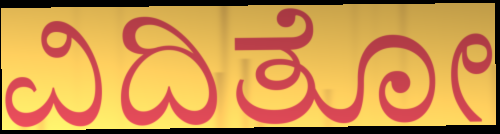
ವಿದಿತೋ